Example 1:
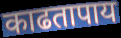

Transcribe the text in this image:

काढतापाय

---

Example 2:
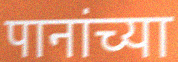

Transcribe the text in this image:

पानांच्या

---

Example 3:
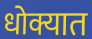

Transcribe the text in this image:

धोक्यात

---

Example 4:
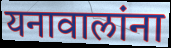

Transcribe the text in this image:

यनावालांना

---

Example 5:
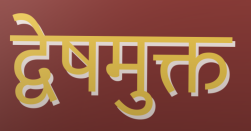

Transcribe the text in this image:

द्वेषमुक्त